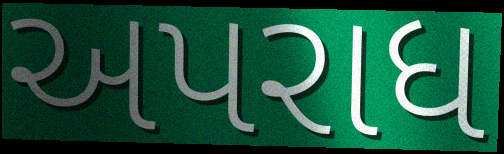
અપરાધ